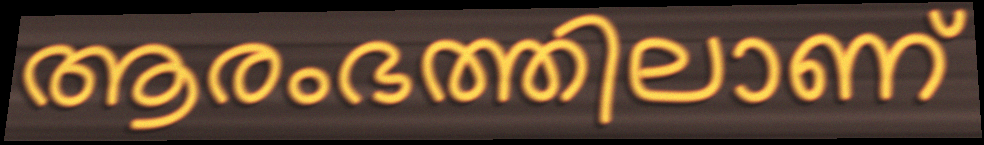
ആരംഭത്തിലാണ്